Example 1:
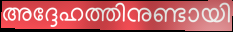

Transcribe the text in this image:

അദ്ദേഹത്തിനുണ്ടായി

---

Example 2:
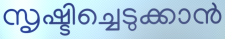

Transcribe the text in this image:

സൃഷ്ടിച്ചെടുക്കാൻ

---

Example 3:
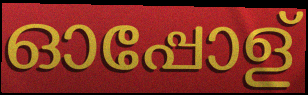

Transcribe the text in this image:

ഓപ്പോള്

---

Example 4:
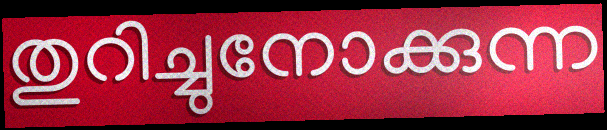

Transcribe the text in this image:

തുറിച്ചുനോക്കുന്ന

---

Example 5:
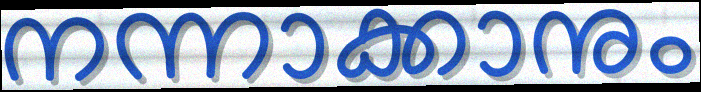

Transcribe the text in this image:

നന്നാക്കാനും